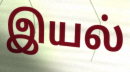
இயல்